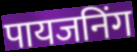
पायजनिंग